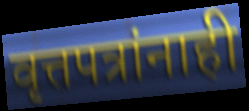
वृत्तपत्रांनाही